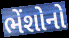
ભેંશોનો